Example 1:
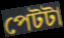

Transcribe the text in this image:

পেটটা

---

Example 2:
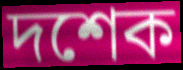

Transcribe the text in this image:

দশেক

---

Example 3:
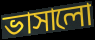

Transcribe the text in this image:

ভাসালো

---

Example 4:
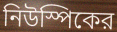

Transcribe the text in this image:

নিউস্পিকের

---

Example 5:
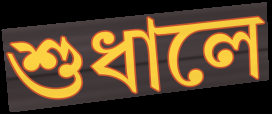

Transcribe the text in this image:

শুধালে